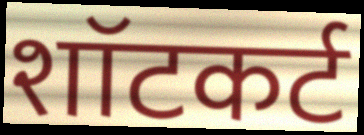
शॉटकर्ट